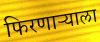
फिरणाऱ्याला